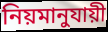
নিয়মানুযায়ী